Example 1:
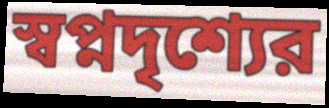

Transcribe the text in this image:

স্বপ্নদৃশ্যের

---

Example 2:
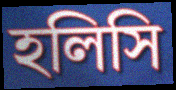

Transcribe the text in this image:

হলিসি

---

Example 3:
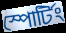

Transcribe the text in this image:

স্পোর্টিং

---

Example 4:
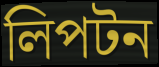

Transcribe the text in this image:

লিপটন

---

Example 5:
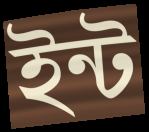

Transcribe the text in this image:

ইন্ট